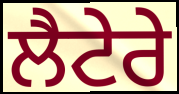
ਲੈਟੇਰੇ